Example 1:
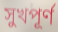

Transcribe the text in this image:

সুখপূর্ণ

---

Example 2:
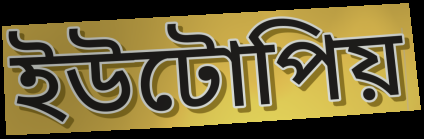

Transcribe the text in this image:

ইউটোপিয়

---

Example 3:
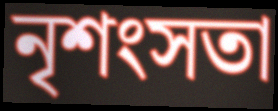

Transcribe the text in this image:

নৃশংসতা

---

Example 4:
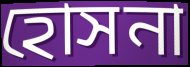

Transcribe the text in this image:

হোসনা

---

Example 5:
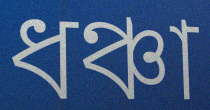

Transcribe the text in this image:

ধঞ্চা